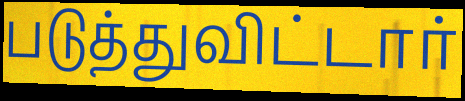
படுத்துவிட்டார்